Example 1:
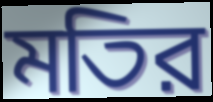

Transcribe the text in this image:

মতির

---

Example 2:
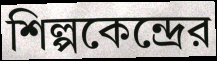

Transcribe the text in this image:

শিল্পকেন্দ্রের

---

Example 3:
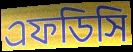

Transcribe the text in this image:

এফডিসি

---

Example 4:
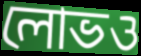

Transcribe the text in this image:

লোভও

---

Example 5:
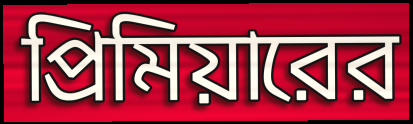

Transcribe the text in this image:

প্রিমিয়ারের